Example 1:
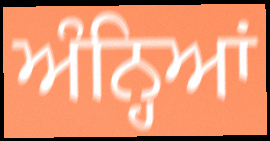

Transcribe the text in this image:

ਅੰਨ੍ਹਿਆਂ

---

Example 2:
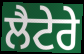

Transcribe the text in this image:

ਲੈਟੇਰੇ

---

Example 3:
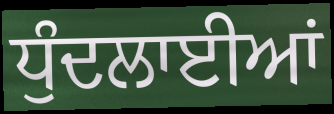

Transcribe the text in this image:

ਧੁੰਦਲਾਈਆਂ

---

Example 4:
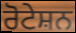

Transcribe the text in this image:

ਰੋਟੇਸ਼ਨ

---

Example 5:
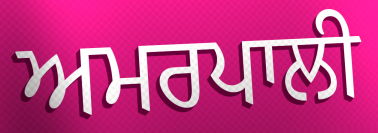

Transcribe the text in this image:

ਅਮਰਪਾਲੀ